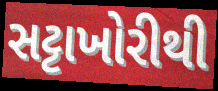
સટ્ટાખોરીથી